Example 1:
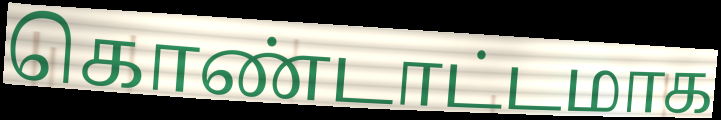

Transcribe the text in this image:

கொண்டாட்டமாக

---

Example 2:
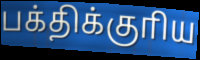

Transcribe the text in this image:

பக்திக்குரிய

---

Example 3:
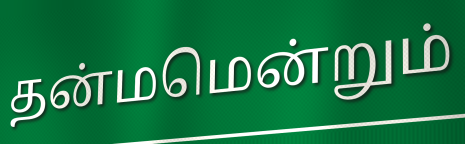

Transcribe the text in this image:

தன்மமென்றும்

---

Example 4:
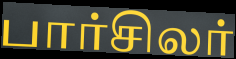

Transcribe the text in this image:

பார்சிலர்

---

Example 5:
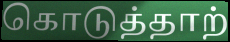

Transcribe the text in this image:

கொடுத்தாற்